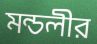
মন্ডলীর